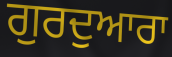
ਗੁਰਦੁਆਰਾ